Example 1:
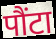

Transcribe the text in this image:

पौंटा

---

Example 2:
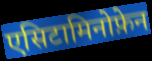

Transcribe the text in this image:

एसिटामिनोफ़ेन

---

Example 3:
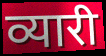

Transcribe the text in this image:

व्यारी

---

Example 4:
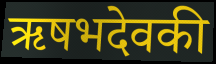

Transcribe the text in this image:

ऋषभदेवकी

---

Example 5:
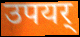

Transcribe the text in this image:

उपयर्